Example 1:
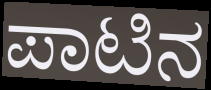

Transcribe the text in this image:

ಪಾಟಿನ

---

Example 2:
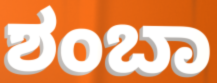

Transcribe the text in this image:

ಶಂಬಾ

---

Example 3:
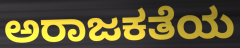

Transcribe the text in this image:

ಅರಾಜಕತೆಯ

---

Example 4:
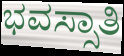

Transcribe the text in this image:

ಭವಸ್ಸಾತಿ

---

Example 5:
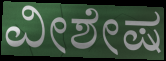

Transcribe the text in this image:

ವೀಶೇಷ